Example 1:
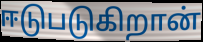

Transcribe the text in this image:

ஈடுபடுகிறான்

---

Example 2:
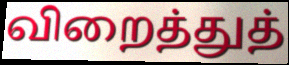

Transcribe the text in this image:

விறைத்துத்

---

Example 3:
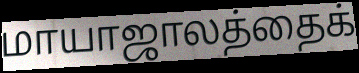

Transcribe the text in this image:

மாயாஜாலத்தைக்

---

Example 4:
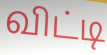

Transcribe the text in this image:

விட்டி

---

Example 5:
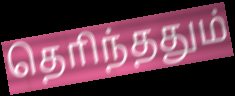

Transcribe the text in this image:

தெரிந்ததும்